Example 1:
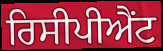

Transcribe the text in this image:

ਰਿਸੀਪੀਐਂਟ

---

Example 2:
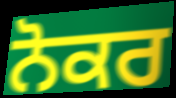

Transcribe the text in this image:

ਨੋਕਰ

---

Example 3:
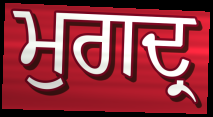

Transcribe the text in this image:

ਮੁਗਦ੍ਰ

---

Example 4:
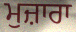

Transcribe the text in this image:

ਮੁਜ਼ਾਰਾ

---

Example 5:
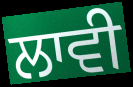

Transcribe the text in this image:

ਲਾਵੀ